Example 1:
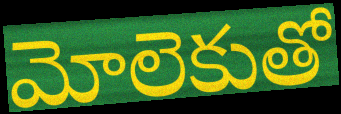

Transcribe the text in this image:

మోలెకుతో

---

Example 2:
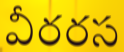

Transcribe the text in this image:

వీరరస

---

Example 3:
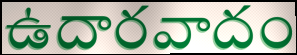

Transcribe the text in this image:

ఉదారవాదం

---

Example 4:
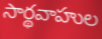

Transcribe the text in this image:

సార్థవాహుల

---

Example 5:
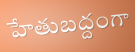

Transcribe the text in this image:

హేతుబద్దంగా